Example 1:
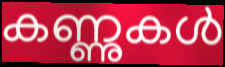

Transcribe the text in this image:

കണ്ണുകൾ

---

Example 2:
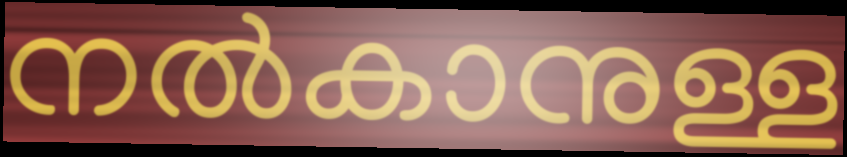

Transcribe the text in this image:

നൽകാനുള്ള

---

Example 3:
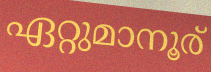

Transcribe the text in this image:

ഏറ്റുമാനൂര്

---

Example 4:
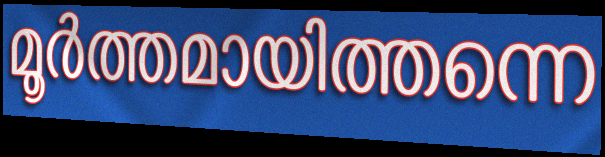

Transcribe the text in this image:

മൂർത്തമായിത്തന്നെ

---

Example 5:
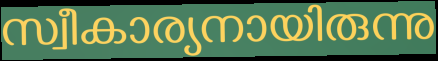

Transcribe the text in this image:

സ്വീകാര്യനായിരുന്നു